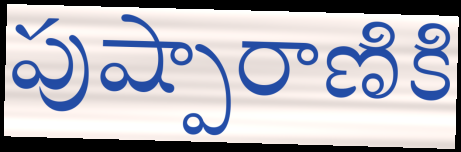
పుష్పారాణికి